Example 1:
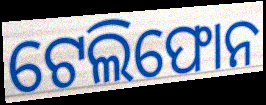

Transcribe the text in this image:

ଟେଲିଫୋନ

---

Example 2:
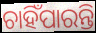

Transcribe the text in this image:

ଚାହିଁପାରନ୍ତି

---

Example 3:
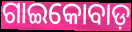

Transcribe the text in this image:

ଗାଇକୋବାଡ଼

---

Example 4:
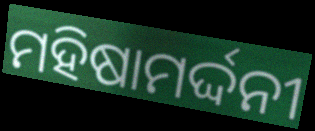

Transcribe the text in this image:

ମହିଷାମର୍ଦ୍ଦନୀ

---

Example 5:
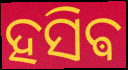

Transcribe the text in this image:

ହସିଵ